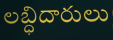
లబ్ధిదారులు